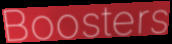
Boosters